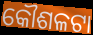
କୌଶଳଟା